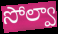
సోల్వా